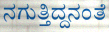
ನಗುತ್ತಿದ್ದನಂತೆ